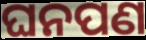
ଘନପଣ